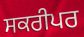
ਸਕਰੀਪਰ